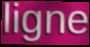
ligne